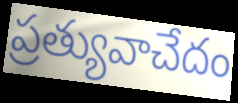
ప్రత్యువాచేదం